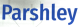
Parshley